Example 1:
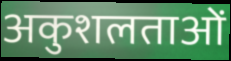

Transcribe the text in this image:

अकुशलताओं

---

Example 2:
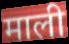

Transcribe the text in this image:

माली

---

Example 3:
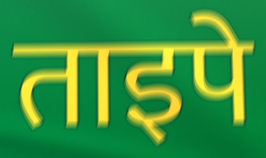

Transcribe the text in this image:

ताइपे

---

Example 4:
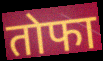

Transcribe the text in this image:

तोफा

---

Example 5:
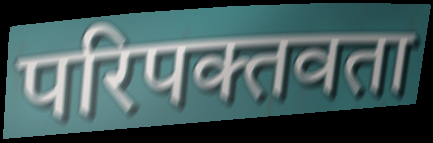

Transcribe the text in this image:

परिपक्तवता